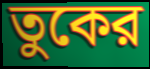
তুকের